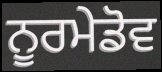
ਨੂਰਮੇਡੋਵ